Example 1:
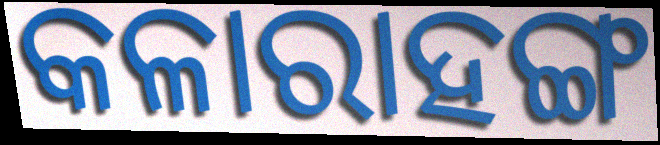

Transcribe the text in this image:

କଳାରାହଙ୍ଗ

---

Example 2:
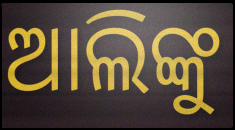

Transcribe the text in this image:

ଆଲିଙ୍କୁ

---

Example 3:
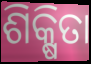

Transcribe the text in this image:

ଶିକ୍ଷିତା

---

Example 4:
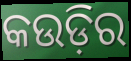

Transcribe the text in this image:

କଉଡ଼ିର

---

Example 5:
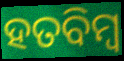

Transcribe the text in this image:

ହତବିମ୍ବ